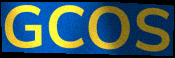
GCOS